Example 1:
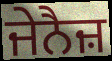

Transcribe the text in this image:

ਜੇਨੈਜ਼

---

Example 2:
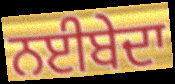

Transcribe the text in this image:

ਨਈਬੇਦਾ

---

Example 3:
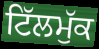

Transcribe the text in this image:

ਟਿੱਲਮੁੱਕ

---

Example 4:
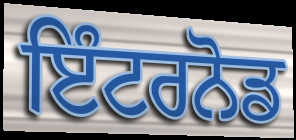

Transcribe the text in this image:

ਇੰਟਰਨੋਡ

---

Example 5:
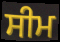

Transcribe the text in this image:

ਸੀਮ